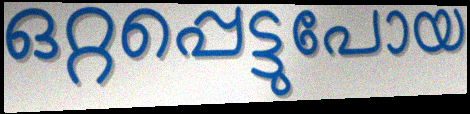
ഒറ്റപ്പെട്ടുപോയ